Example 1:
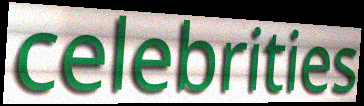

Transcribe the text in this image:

celebrities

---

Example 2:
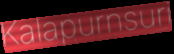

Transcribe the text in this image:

Kalapurnsuri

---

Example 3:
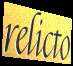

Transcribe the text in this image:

relicto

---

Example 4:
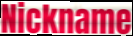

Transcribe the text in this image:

Nickname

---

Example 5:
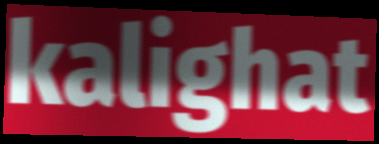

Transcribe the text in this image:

kalighat